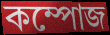
কম্পোজ